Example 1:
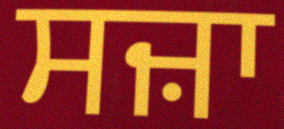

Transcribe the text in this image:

ਸਜ਼ਾ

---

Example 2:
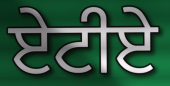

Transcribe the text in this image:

ਏਟੀਏ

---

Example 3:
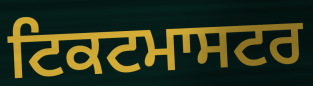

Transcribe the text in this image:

ਟਿਕਟਮਾਸਟਰ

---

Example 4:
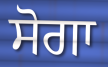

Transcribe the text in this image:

ਸੋਗਾ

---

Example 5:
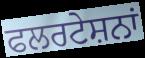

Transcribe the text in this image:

ਫਲਰਟੇਸ਼ਨਾਂ